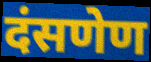
दंसणेण